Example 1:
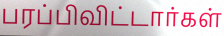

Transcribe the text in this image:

பரப்பிவிட்டார்கள்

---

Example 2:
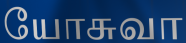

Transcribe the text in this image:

யோசுவா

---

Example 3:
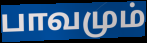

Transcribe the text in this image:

பாவமும்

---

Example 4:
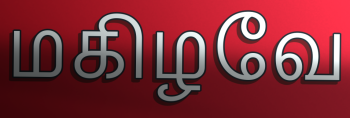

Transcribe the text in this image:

மகிழவே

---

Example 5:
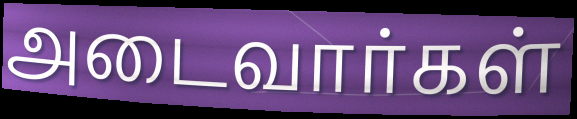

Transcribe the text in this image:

அடைவார்கள்